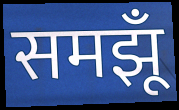
समझूँ